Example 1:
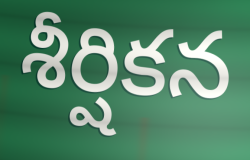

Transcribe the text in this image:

శీర్షికన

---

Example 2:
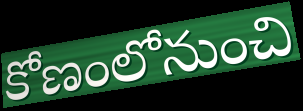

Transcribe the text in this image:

కోణంలోనుంచి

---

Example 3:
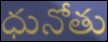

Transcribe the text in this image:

ధునోతు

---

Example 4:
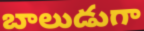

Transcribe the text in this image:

బాలుడుగా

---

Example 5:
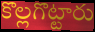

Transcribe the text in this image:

కొల్లగొట్టారు